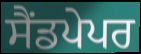
ਸੈਂਡਪੇਪਰ